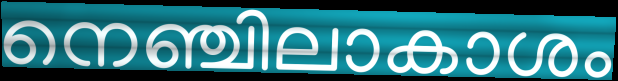
നെഞ്ചിലാകാശം